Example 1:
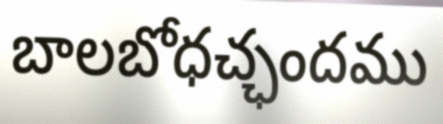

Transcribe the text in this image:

బాలబోధచ్ఛందము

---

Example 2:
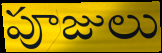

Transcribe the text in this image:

పూజులు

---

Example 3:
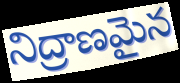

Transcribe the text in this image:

నిద్రాణమైన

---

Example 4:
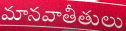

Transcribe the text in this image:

మానవాతీతులు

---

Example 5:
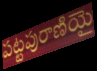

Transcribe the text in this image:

పట్టపురాణియై